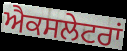
ਐਕਸਲੇਟਰਾਂ